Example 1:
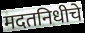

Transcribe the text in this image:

मदतनिधीचे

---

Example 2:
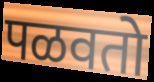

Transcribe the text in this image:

पळवतो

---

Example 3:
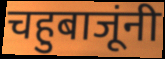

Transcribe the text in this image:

चहुबाजूंनी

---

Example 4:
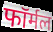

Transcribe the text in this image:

फॉर्मल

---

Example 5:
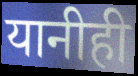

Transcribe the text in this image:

यानीही